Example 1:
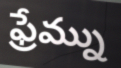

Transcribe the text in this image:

ఫ్రేమ్ను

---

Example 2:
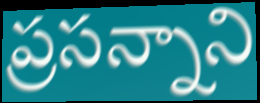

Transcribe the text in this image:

ప్రసన్నాని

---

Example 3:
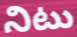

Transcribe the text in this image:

నిటు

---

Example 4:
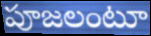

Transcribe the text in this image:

పూజలంటూ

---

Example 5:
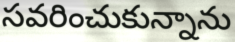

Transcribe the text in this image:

సవరించుకున్నాను